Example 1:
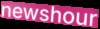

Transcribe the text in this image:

newshour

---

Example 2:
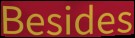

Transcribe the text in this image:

Besides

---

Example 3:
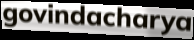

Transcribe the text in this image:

govindacharya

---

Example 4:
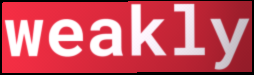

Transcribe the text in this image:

weakly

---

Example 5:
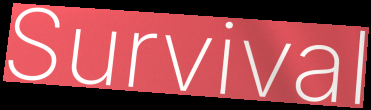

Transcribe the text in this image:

Survival